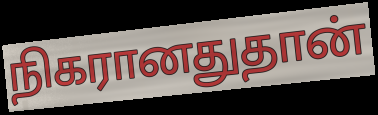
நிகரானதுதான்